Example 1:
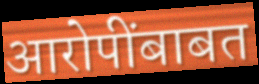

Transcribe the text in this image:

आरोपींबाबत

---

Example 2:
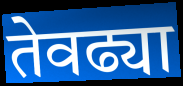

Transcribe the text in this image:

तेवढ्या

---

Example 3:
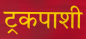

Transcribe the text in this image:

ट्रकपाशी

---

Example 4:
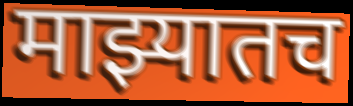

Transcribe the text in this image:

माझ्यातच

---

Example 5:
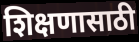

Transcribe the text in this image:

शिक्षणासाठी